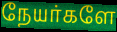
நேயர்களே